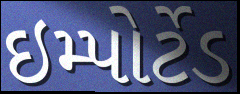
ઇમ્પોર્ટેડ